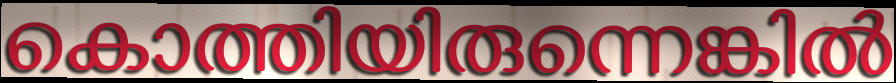
കൊത്തിയിരുന്നെങ്കിൽ